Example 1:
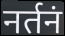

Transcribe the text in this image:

नर्तनं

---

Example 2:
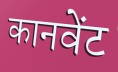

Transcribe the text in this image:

कानवेंट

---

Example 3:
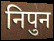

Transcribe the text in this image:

निपुन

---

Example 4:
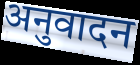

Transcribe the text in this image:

अनुवादन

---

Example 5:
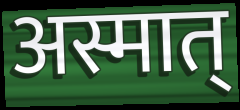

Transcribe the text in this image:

अस्मात्